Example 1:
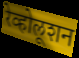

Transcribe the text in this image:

रेव्होलूशन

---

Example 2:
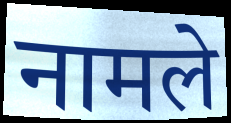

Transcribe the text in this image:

नामले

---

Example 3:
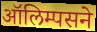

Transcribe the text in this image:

ऑलिम्पसने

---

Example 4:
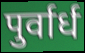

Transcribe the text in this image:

पुर्वार्ध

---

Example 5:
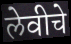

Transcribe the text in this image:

लेवीचे